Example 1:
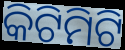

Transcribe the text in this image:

କିଟିମିଟି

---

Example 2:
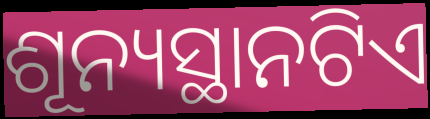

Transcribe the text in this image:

ଶୂନ୍ୟସ୍ଥାନଟିଏ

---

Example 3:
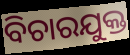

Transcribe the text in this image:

ବିଚାରଯୁକ୍ତ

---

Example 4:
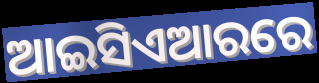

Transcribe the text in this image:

ଆଇସିଏଆରରେ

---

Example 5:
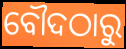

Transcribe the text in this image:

ବୌଦଠାରୁ